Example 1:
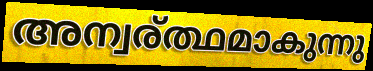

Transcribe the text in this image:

അന്വര്ത്ഥമാകുന്നു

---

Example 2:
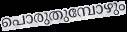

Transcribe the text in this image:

പൊരുതുമ്പോഴും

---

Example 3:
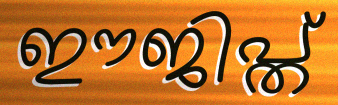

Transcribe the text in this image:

ഈജിപ്ത്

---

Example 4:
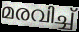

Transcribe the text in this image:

മരവിച്ച്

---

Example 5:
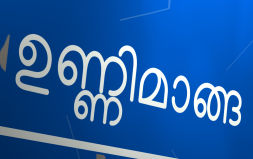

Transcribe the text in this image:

ഉണ്ണിമാങ്ങ